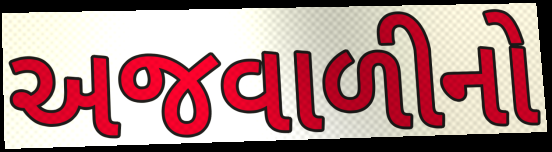
અજવાળીનો